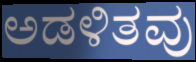
ಅಡಳಿತವು